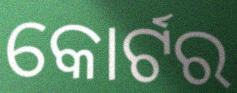
କୋର୍ଟର